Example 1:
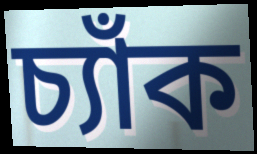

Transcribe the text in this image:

চ্যাঁক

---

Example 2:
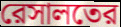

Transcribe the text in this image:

রেসালতের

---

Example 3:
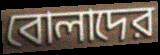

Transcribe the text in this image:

বোলাদের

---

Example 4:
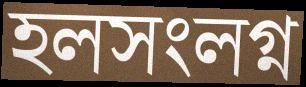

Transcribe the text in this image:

হলসংলগ্ন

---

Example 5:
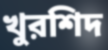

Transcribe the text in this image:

খুরশিদ